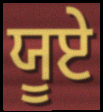
ਯੂਏ